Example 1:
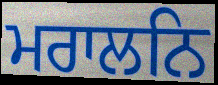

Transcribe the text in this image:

ਮਰਾਲਨਿ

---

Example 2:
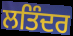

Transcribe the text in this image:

ਲਤਿੰਦਰ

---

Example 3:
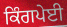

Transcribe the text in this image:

ਕਿੰਗਪੇਈ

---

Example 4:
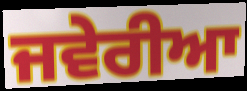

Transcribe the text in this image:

ਜਵੇਰੀਆ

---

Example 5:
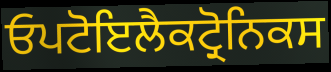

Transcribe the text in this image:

ਓਪਟੋਇਲੈਕਟ੍ਰੋਨਿਕਸ